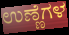
ಉಣ್ಣೆಗಳ